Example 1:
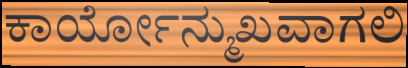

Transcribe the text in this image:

ಕಾರ್ಯೋನ್ಮುಖವಾಗಲಿ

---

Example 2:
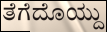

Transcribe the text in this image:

ತೆಗೆದೊಯ್ದು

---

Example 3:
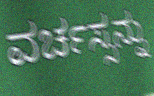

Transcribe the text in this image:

ವರ್ಚಸ್ಸನ್ನು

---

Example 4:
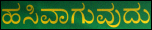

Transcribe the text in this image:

ಹಸಿವಾಗುವುದು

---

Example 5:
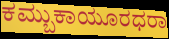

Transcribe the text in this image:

ಕಮ್ಬುಕಾಯೂರಧರಾ